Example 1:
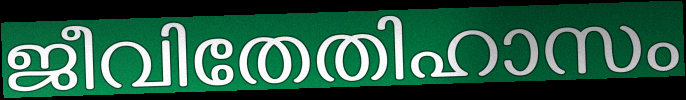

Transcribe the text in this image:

ജീവിതേതിഹാസം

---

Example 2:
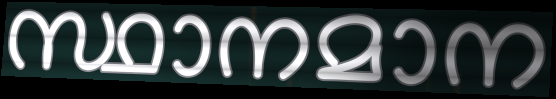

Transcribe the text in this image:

സ്ഥാനമാന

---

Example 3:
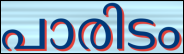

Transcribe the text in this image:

പാരിടം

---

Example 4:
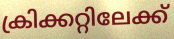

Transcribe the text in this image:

ക്രിക്കറ്റിലേക്ക്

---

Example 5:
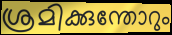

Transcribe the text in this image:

ശ്രമിക്കുന്തോറും